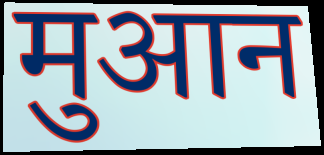
मुआन